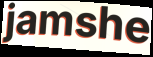
jamshe